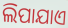
ଲିପାଯାଏ